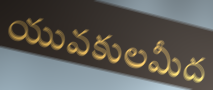
యువకులమీద